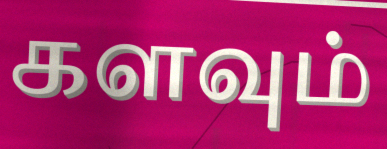
களவும்